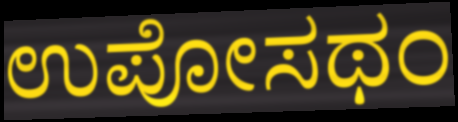
ಉಪೋಸಥಂ